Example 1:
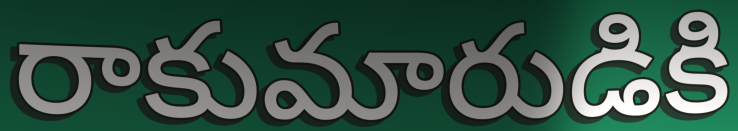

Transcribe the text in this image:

రాకుమారుడికి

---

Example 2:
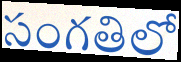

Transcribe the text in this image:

సంగతిలో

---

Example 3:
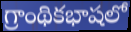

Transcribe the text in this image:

గ్రాంథికభాషలో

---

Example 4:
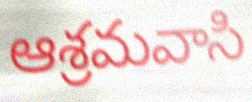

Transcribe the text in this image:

ఆశ్రమవాసి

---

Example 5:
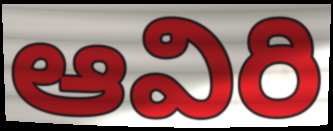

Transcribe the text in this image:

ఆవిరి